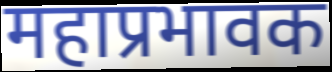
महाप्रभावक